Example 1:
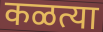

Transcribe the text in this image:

कळत्या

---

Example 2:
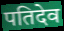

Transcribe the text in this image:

पतिदेव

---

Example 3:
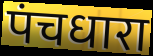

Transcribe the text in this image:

पंचधारा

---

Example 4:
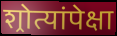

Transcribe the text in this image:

श्रोत्यांपेक्षा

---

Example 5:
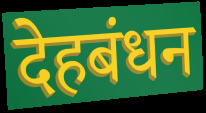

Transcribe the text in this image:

देहबंधन